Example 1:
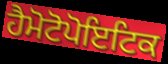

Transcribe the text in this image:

ਹੈਮੋਟੋਪੋਇਟਿਕ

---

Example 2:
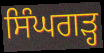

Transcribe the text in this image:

ਸਿੰਘਗੜ੍ਹ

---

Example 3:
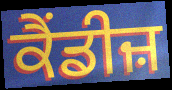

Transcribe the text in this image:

ਕੈਂਡੀਜ਼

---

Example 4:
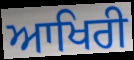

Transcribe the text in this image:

ਆਖਿਰੀ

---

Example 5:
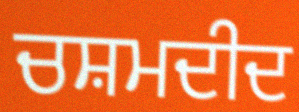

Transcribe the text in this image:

ਚਸ਼ਮਦੀਦ